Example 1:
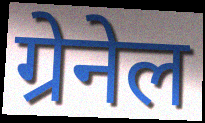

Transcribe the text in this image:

ग्रेनेल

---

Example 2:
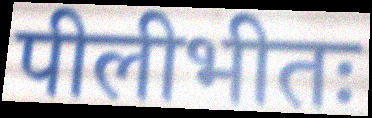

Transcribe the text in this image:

पीलीभीतः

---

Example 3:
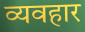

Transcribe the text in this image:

व्‍यवहार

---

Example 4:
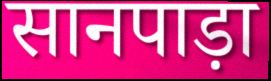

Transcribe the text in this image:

सानपाड़ा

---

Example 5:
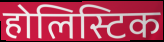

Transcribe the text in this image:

होलिस्टिक